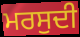
ਮਰਸੁਦੀ